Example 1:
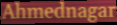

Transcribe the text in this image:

Ahmednagar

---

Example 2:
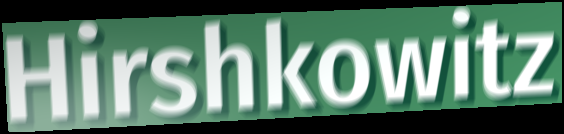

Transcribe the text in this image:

Hirshkowitz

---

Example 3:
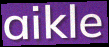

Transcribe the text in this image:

aikle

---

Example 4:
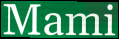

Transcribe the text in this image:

Mami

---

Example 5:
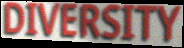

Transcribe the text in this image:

DIVERSITY